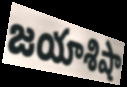
జయాశిషా